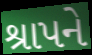
શ્રાપને